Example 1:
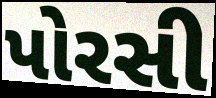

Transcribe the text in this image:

પોરસી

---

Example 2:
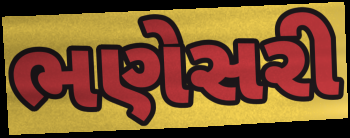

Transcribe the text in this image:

ભણેસરી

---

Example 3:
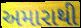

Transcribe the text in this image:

અમારાથી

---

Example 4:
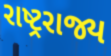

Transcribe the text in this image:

રાષ્ટ્રરાજ્ય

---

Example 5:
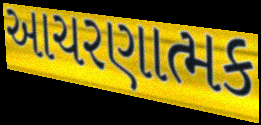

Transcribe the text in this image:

આચરણાત્મક